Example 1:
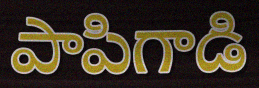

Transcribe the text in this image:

పాపిగాడి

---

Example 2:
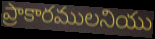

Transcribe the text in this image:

ప్రాకారములనియు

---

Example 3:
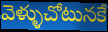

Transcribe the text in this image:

వెళ్ళుచోటునకే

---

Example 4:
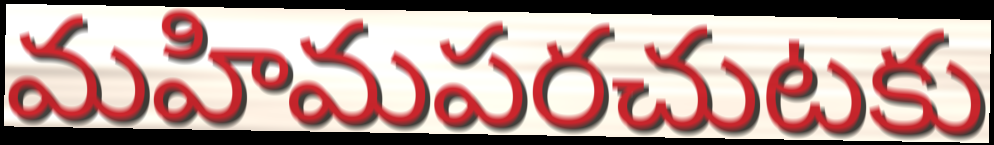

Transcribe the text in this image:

మహిమపరచుటకు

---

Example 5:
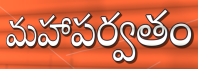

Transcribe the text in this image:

మహాపర్వతం